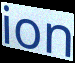
ion